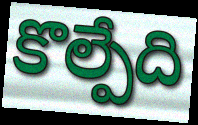
కొల్పేది